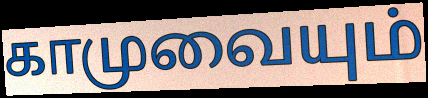
காமுவையும்